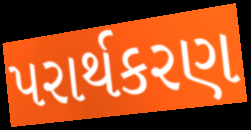
પરાર્થકરણ